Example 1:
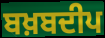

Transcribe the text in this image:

ਬਖ਼ਬਦੀਪ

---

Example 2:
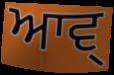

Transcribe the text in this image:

ਆਵ੍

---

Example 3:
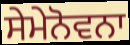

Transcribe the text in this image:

ਸੇਮੇਨੋਵਨਾ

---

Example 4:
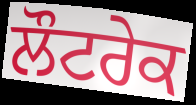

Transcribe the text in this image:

ਲੌਟਰੇਕ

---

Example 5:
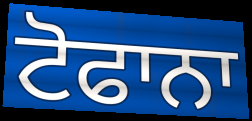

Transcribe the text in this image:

ਟੋਫਾਨਾ